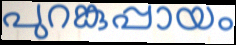
പുറങ്കുപ്പായം